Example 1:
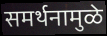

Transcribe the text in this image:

समर्थनामुळे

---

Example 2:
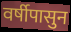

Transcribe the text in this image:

वर्षीपासुन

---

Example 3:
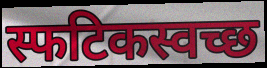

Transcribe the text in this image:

स्फटिकस्वच्छ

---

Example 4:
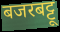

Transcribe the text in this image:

बजरबट्टू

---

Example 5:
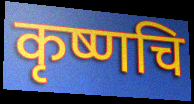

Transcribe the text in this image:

कृष्णचि